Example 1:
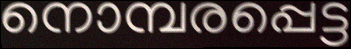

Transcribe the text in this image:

നൊമ്പരപ്പെട്ട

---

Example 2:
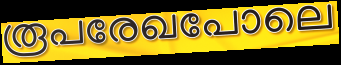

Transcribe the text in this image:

രൂപരേഖപോലെ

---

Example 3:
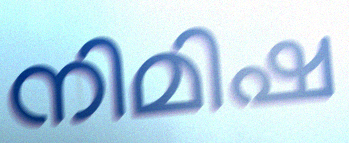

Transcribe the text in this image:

നിമിഷ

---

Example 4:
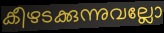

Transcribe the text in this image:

കീഴടക്കുന്നുവല്ലോ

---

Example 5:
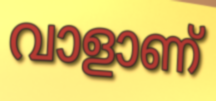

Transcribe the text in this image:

വാളാണ്